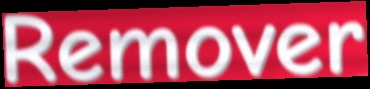
Remover